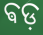
ଵଡ଼